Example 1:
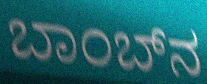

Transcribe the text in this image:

ಬಾಂಬ್‍ನ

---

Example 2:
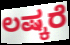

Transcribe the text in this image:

ಲಷ್ಕರೆ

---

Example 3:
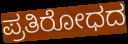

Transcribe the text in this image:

ಪ್ರತಿರೋಧದ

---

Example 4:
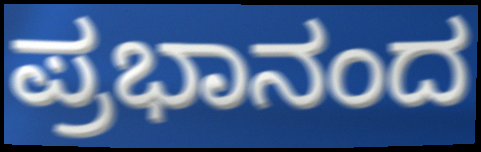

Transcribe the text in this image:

ಪ್ರಭಾನಂದ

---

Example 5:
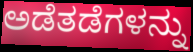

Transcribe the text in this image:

ಅಡೆತಡೆಗಳನ್ನು